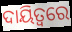
ଦାୟିତ୍ବରେ